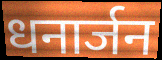
धनार्जन